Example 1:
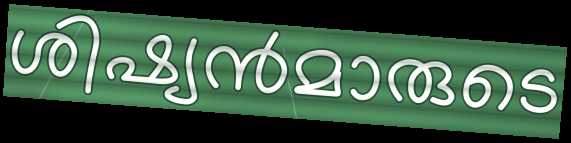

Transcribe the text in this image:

ശിഷ്യൻമാരുടെ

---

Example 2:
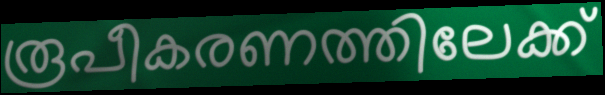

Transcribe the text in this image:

രൂപീകരണത്തിലേക്ക്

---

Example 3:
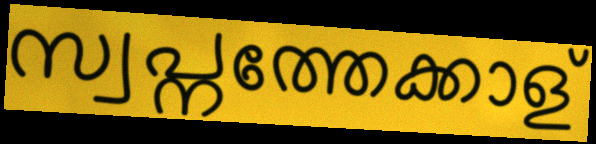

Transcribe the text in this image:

സ്വപ്നത്തേക്കാള്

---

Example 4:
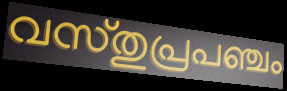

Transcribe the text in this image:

വസ്തുപ്രപഞ്ചം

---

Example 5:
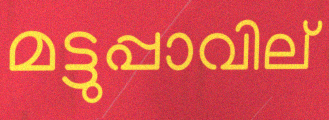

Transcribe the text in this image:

മട്ടുപ്പാവില്